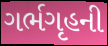
ગર્ભગૃહની